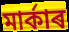
মাৰ্কাৰ